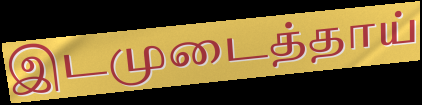
இடமுடைத்தாய்